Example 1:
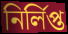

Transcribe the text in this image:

নির্লিপ্ত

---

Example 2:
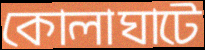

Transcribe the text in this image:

কোলাঘাটে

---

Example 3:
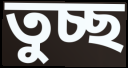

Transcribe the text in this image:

তুচ্ছ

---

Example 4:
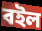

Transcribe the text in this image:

বইল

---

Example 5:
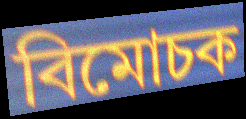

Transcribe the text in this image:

বিমোচক